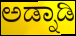
ಅಡ್ನಾಡಿ